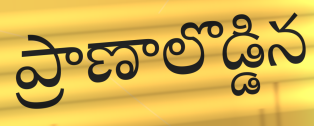
ప్రాణాలొడ్డిన